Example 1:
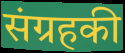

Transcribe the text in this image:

संग्रहकी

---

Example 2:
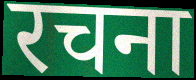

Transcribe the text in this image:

रचना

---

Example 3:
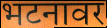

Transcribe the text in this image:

भटनावर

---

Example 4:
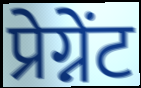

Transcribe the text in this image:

प्रेग्नेंट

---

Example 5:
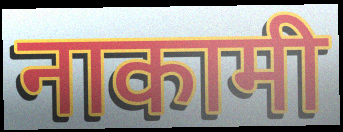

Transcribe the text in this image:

नाकामी